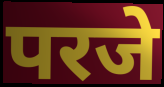
परजे